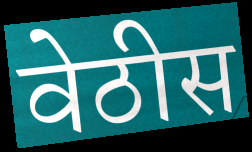
वेठीस